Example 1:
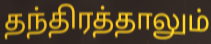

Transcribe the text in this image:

தந்திரத்தாலும்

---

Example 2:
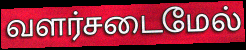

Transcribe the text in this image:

வளர்சடைமேல்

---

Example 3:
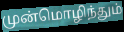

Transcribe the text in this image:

முன்மொழிந்தும்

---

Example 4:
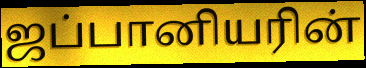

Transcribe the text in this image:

ஜப்பானியரின்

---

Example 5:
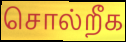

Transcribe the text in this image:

சொல்றீக